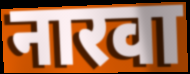
नारवा